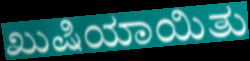
ಖುಷಿಯಾಯಿತು